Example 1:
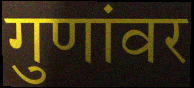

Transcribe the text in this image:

गुणांवर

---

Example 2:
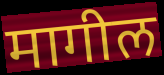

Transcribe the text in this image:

मागील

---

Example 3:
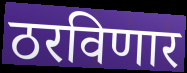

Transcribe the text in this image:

ठरविणार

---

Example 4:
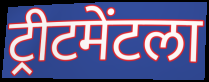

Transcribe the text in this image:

ट्रीटमेंटला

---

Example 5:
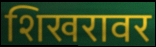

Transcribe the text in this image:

शिखरावर